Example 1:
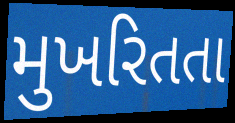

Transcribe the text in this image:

મુખરિતતા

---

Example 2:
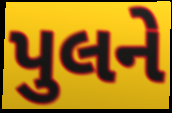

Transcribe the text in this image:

પુલને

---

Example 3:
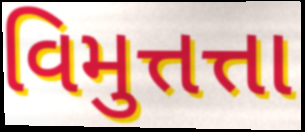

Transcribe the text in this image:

વિમુત્તત્તા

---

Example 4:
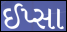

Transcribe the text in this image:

ઈપ્સા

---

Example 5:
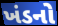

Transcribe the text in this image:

ખંડનો